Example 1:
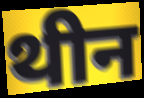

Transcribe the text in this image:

थीन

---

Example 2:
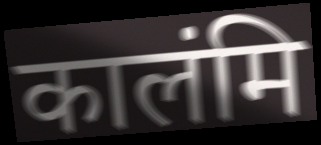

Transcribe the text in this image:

कालंमि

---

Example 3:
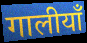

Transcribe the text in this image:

गालीयाँ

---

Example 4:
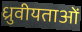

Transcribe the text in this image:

ध्रुवीयताओं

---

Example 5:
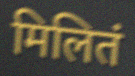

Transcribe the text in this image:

मिलितं